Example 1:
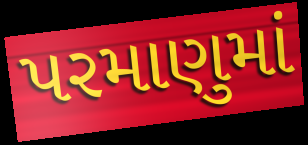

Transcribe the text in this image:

પરમાણુમાં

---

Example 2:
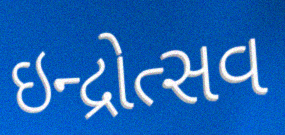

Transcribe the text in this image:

ઇન્દ્રોત્સવ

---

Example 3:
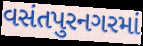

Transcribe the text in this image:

વસંતપુરનગરમાં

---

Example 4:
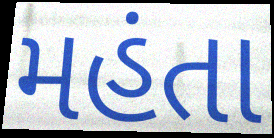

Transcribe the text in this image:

મહંતા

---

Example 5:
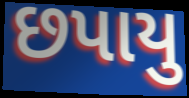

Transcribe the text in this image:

છપાયુ